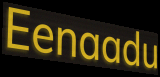
Eenaadu